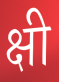
क्षी